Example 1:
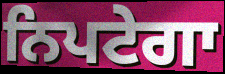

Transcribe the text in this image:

ਨਿਪਟੇਗਾ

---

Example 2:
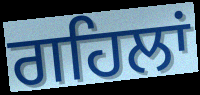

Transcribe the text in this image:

ਗਹਿਲਾਂ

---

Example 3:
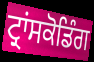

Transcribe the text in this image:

ਟ੍ਰਾਂਸਕੋਡਿੰਗ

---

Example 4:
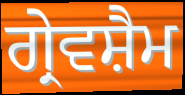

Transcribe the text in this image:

ਗ੍ਰੇਵਸ਼ੈਮ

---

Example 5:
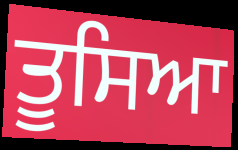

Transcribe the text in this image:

ਤੂਸਿਆ